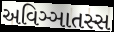
અવિઞ્ઞાતસ્સ